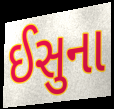
ઈસુના